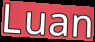
Luan